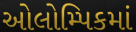
ઓલોમ્પિકમાં